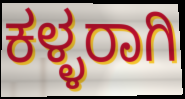
ಕಳ್ಳರಾಗಿ